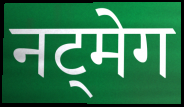
नट्मेग